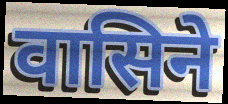
वासिने